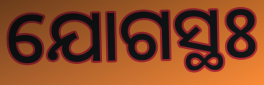
ଯୋଗସ୍ଥଃ